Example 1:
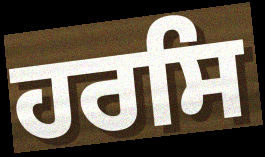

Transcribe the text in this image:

ਹਰਸਿ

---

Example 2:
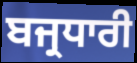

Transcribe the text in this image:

ਬਜ੍ਰਧਾਰੀ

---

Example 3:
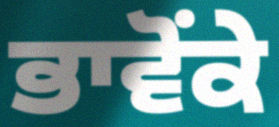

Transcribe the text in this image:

ਭਾਵੋਂਕੇ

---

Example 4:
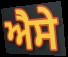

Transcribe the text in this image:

ਐੇਸੇ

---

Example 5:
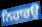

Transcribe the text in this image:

ਨਿਹਾਰਉ